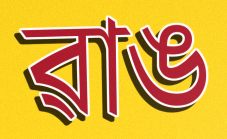
ৱাঙ